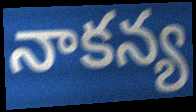
నాకన్య